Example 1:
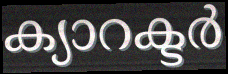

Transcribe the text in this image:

ക്യാറക്ടർ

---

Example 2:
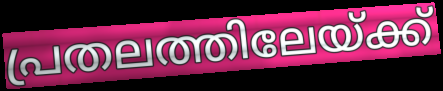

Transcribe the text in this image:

പ്രതലത്തിലേയ്ക്ക്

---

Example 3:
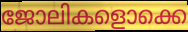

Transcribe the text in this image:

ജോലികളൊക്കെ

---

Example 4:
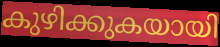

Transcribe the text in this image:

കുഴിക്കുകയായി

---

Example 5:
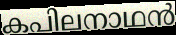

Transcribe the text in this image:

കപിലനാഥൻ